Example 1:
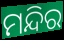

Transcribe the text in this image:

ମନ୍ଦିର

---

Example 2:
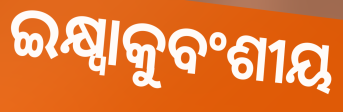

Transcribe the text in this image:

ଇକ୍ଷ୍ୱାକୁବଂଶୀୟ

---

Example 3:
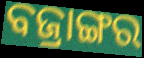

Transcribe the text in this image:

ବଜ୍ରାଙ୍ଗର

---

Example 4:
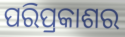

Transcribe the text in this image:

ପରିପ୍ରକାଶର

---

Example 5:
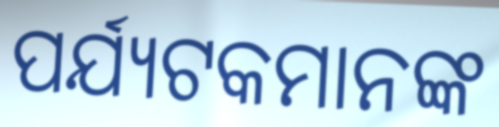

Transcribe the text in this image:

ପର୍ଯ୍ୟଟକମାନଙ୍କ